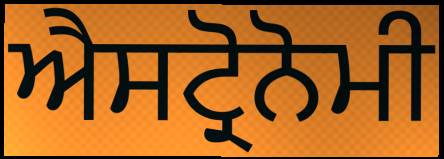
ਐਸਟ੍ਰੋਨੋਮੀ